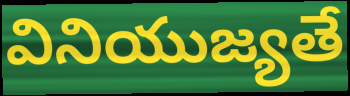
వినియుజ్యతే